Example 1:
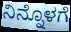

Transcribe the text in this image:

ನಿನ್ನೊಳಗೆ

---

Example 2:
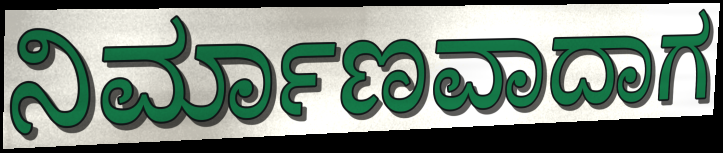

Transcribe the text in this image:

ನಿರ್ಮಾಣವಾದಾಗ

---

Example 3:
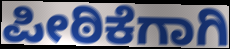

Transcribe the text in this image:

ಪೀಠಿಕೆಗಾಗಿ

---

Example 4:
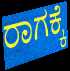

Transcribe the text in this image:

ರಾಗಕ್ಕೆ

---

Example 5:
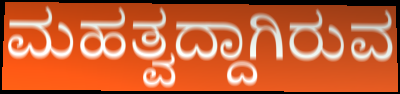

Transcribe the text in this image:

ಮಹತ್ವದ್ದಾಗಿರುವ